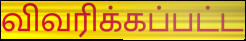
விவரிக்கப்பட்ட